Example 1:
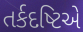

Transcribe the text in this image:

તર્કદષ્ટિએ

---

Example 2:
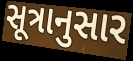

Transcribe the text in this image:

સૂત્રાનુસાર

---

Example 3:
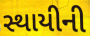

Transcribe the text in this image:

સ્થાયીની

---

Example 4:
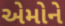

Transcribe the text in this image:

એમોને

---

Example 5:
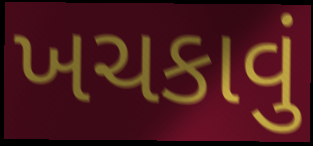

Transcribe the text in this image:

ખચકાવું